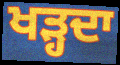
ਖੜ੍ਹਦਾ